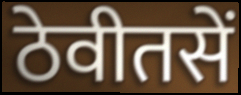
ठेवीतसें